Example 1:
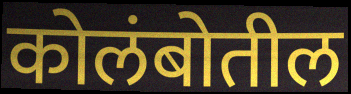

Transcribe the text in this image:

कोलंबोतील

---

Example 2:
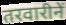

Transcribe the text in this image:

तरवारीनें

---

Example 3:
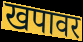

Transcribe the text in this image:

खपावर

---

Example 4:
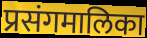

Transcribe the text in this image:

प्रसंगमालिका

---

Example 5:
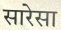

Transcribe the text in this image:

सारेसा